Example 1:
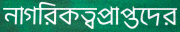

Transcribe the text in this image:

নাগরিকত্বপ্রাপ্তদের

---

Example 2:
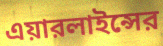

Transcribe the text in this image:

এয়ারলাইন্সের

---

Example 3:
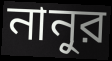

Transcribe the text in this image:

নানুর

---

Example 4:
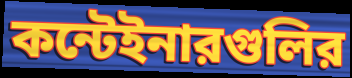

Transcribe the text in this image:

কন্টেইনারগুলির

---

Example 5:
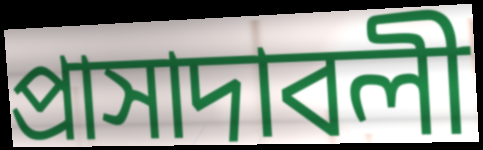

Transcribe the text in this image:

প্রাসাদাবলী